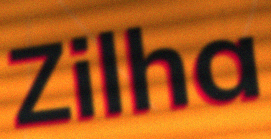
Zilha